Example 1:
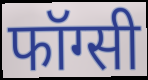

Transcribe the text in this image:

फॉग्सी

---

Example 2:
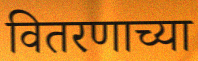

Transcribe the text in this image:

वितरणाच्या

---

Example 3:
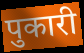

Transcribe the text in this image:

पुकारी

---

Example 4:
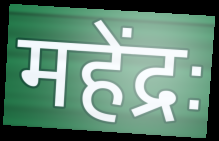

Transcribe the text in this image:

महेंद्रः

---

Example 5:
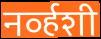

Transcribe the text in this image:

नर्व्हशी